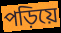
পড়িয়ে